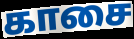
காசை